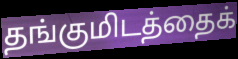
தங்குமிடத்தைக்